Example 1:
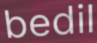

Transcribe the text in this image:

bedil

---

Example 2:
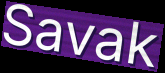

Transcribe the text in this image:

Savak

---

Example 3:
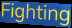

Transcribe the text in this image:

Fighting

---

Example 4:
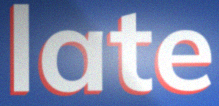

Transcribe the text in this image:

late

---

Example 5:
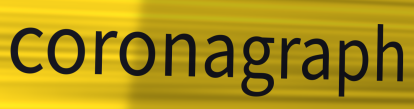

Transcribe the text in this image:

coronagraph